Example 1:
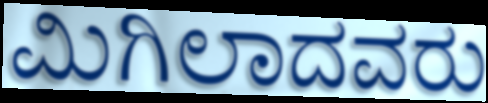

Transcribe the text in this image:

ಮಿಗಿಲಾದವರು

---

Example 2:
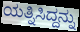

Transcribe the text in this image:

ಯತ್ನಿಸಿದ್ದನ್ನು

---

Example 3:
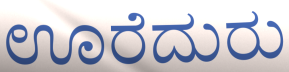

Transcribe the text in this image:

ಊರೆದುರು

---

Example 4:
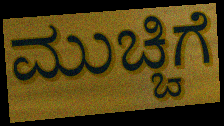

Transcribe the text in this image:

ಮುಚ್ಚಿಗೆ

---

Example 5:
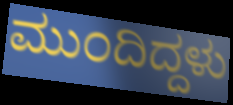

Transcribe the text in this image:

ಮುಂದಿದ್ದಳು